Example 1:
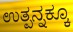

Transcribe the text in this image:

ಉತ್ಪನ್ನಕ್ಕೂ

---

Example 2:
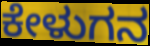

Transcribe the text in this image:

ಕೇಳುಗನ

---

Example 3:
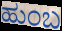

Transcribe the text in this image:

ಹುಂಬ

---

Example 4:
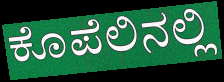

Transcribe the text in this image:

ಕೊಪೆಲಿನಲ್ಲಿ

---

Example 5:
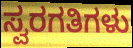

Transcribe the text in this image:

ಸ್ವರಗತಿಗಳು